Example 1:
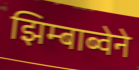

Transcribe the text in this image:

झिम्बाब्वेने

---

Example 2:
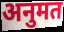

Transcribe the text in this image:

अनुमत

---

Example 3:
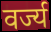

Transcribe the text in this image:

वर्ज्य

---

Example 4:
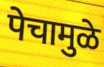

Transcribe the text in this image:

पेचामुळे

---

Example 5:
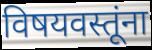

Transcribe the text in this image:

विषयवस्तूंना